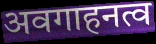
अवगाहनत्व